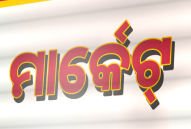
ମାର୍କେଟ୍